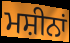
ਮਸ਼ੀਨਾਂ